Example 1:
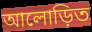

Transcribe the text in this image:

আলোড়িত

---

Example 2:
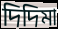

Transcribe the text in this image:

দিদিমা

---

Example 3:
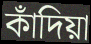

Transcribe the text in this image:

কাঁদিয়া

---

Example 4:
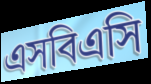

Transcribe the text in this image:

এসবিএসি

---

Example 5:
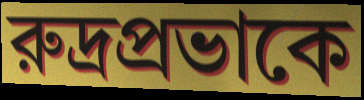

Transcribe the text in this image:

রুদ্রপ্রভাকে